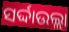
ସର୍ଦ୍ଦାଉଲ୍ଲା